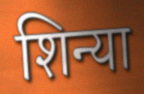
शिन्या